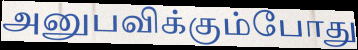
அனுபவிக்கும்போது